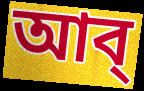
আব্